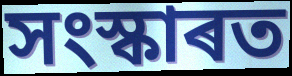
সংস্কাৰত